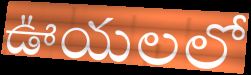
ఊయలలో